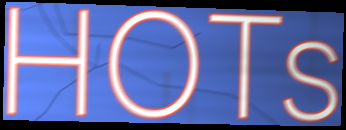
HOTs